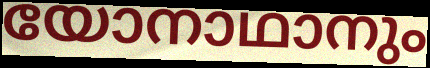
യോനാഥാനും